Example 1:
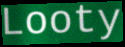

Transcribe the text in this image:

Looty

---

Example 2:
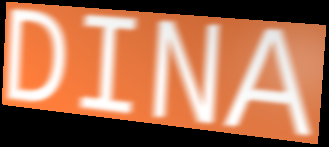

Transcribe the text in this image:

DINA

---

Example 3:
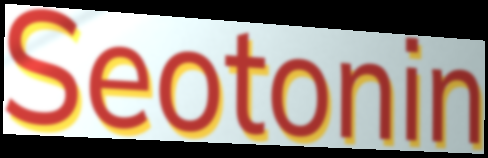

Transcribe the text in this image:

Seotonin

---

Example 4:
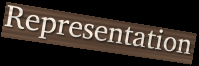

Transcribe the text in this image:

Representation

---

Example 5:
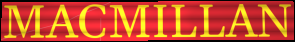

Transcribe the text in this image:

MACMILLAN